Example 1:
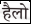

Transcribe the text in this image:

हैलो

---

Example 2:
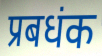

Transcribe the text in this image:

प्रबधंक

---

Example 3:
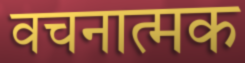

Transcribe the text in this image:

वचनात्मक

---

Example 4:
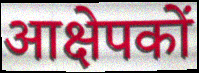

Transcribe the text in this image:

आक्षेपकों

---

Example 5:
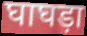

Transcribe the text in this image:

घाघड़ा